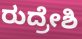
ರುದ್ರೇಶಿ